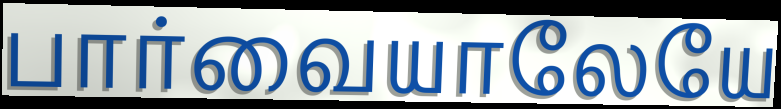
பார்வையாலேயே